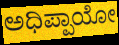
ಅಧಿಪ್ಪಾಯೋ